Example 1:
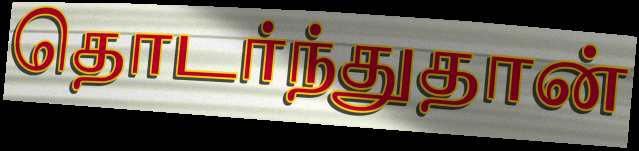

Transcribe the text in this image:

தொடர்ந்துதான்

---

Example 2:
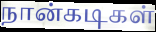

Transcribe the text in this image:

நான்கடிகள்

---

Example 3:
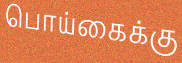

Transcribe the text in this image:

பொய்கைக்கு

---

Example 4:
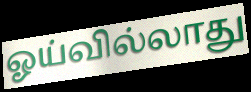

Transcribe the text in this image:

ஓய்வில்லாது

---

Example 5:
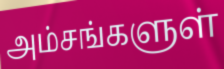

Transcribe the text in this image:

அம்சங்களுள்